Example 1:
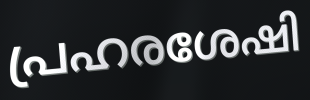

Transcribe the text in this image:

പ്രഹരശേഷി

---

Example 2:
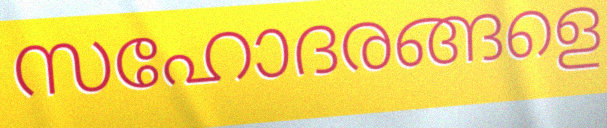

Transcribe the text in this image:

സഹോദരങ്ങളെ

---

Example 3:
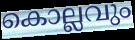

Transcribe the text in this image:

കൊല്ലവും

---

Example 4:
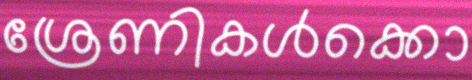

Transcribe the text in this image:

ശ്രേണികൾക്കൊ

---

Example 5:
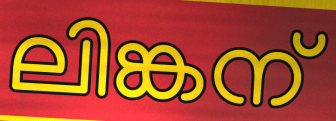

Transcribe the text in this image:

ലിങ്കന്